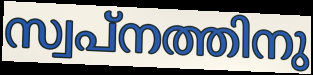
സ്വപ്നത്തിനു